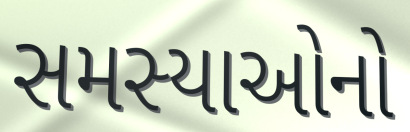
સમસ્યાઓનો